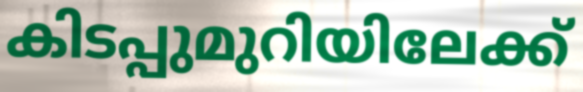
കിടപ്പുമുറിയിലേക്ക്